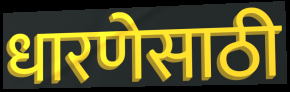
धारणेसाठी